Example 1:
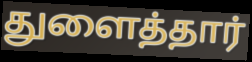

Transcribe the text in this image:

துளைத்தார்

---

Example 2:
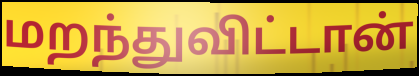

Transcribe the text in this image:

மறந்துவிட்டான்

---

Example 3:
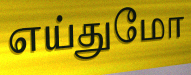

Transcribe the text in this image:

எய்துமோ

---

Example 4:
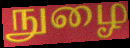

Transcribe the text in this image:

நுழை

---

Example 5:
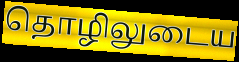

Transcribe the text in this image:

தொழிலுடைய